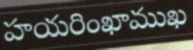
హయరింఖాముఖ